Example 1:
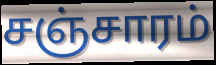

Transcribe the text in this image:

சஞ்சாரம்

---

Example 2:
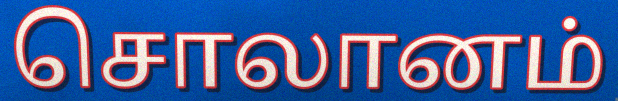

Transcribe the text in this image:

சொலானம்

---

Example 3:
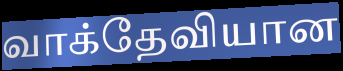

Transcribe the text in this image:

வாக்தேவியான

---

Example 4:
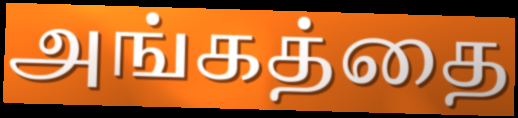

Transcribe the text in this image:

அங்கத்தை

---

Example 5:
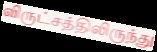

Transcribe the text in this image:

விருட்சத்திலிருந்து